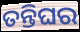
ତନ୍ତିଘର